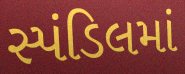
સ્પંડિલમાં